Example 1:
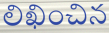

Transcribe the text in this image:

లిఖించిన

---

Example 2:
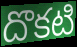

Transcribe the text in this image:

దొకటి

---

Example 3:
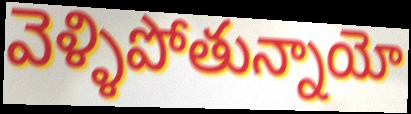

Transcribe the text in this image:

వెళ్ళిపోతున్నాయో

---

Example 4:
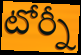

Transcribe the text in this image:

టోర్నీ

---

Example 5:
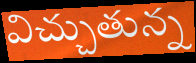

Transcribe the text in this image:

విచ్చుతున్న